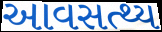
આવસત્થ્ય